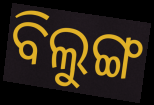
ବିଲୁଙ୍ଗ